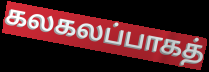
கலகலப்பாகத்